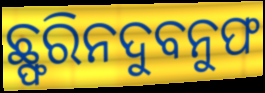
ଛ୍ଫରିନଦୁବନୁଫ